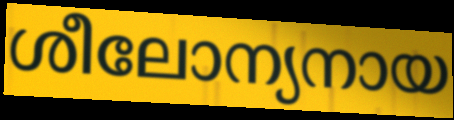
ശീലോന്യനായ